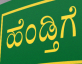
ಹೆಂಡ್ತಿಗೆ